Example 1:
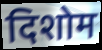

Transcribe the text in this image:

दिशोम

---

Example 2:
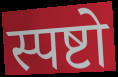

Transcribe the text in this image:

स्पष्टो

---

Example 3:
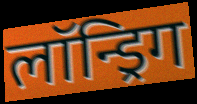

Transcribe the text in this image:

लॉन्ड्रिग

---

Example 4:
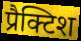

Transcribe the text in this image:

प्रैक्टिश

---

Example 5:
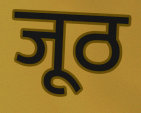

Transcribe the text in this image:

जूठ